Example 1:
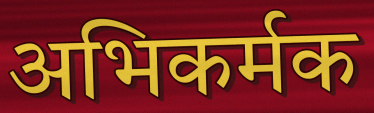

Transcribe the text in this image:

अभिकर्मक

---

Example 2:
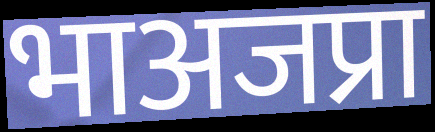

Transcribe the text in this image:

भाअजप्रा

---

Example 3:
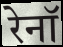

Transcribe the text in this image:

रेनॉ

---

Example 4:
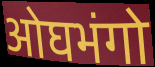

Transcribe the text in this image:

ओघभंगो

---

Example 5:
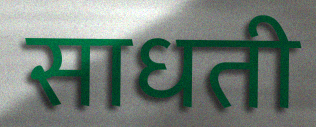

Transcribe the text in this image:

साधती